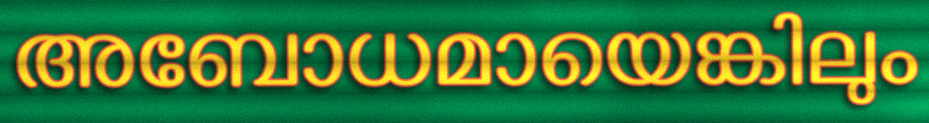
അബോധമായെങ്കിലും